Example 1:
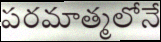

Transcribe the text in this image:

పరమాత్మలోనే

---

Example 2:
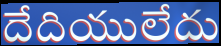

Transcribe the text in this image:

దేదియులేదు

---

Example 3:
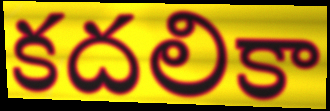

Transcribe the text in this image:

కదలికా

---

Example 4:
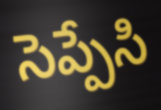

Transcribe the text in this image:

సెప్పేసి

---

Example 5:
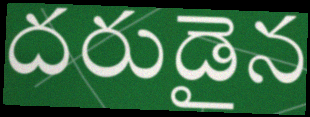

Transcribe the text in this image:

దరుడైన